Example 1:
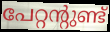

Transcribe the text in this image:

പേറ്റന്റുണ്ട്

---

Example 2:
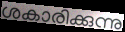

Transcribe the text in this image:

ശകാരിക്കുന്നു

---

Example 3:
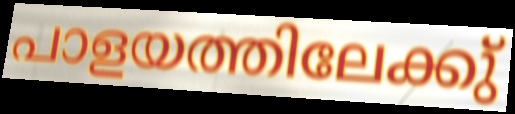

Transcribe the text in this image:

പാളയത്തിലേക്കു്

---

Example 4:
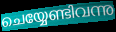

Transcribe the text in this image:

ചെയ്യേണ്ടിവന്നു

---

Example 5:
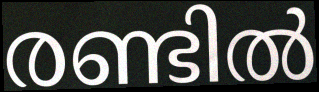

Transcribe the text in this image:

രണ്ടിൽ